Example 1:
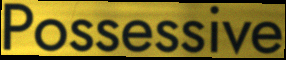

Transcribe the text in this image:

Possessive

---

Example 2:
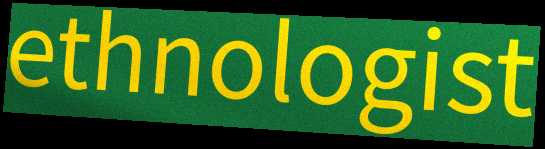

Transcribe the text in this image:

ethnologist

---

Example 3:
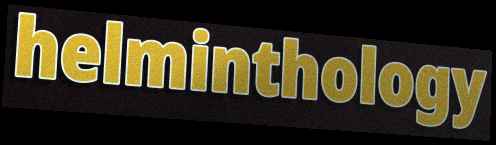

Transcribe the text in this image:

helminthology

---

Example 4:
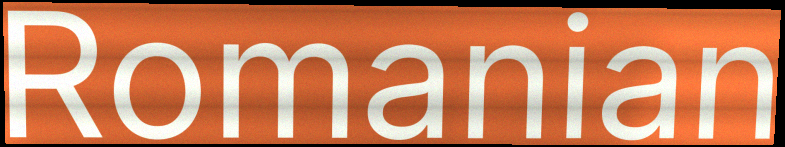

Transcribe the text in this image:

Romanian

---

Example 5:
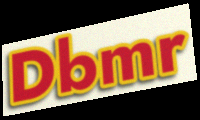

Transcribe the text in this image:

Dbmr